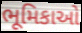
ભૂમિકાઓ